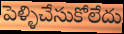
పెళ్ళిచేసుకోలేదు